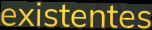
existentes